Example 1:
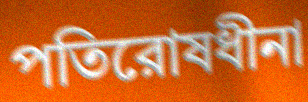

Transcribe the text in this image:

পতিরোষধীনা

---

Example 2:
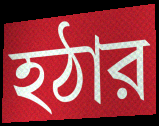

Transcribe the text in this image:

হঠার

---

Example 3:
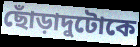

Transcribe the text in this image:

ছোঁড়াদুটোকে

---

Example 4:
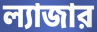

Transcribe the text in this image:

ল্যাজার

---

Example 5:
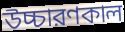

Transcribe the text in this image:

উচ্চারণকাল